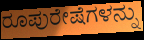
ರೂಪುರೇಷೆಗಳನ್ನು